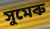
সুমেৰু